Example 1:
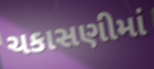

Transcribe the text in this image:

ચકાસણીમાં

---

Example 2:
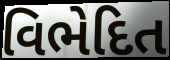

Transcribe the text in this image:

વિભેદિત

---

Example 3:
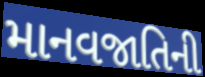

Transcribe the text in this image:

માનવજાતિની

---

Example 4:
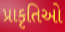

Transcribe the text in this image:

પ્રાકૃતિઓ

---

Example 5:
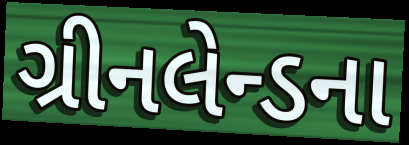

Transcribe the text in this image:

ગ્રીનલેન્ડના